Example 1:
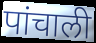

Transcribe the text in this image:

पांचाली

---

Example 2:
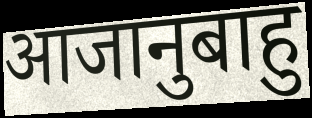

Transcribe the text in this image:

आजानुबाहु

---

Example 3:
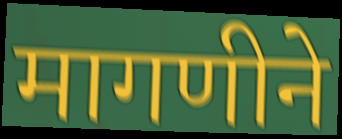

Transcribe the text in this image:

मागणीने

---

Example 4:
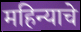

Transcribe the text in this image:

महिन्याचे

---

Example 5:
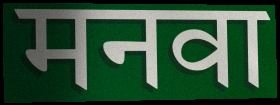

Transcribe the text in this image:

मनवा